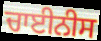
ਚਾਈਨੀਸ